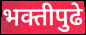
भक्तीपुढे